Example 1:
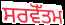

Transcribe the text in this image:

ਸਰਵੋੱਤਮ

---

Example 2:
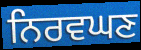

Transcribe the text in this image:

ਨਿਰਵਘਣ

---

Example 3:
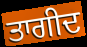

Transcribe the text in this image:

ਤਾਗੀਦ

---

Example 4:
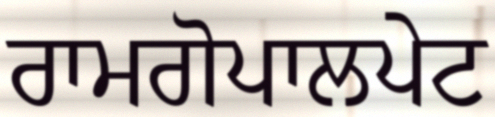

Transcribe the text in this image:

ਰਾਮਗੋਪਾਲਪੇਟ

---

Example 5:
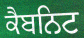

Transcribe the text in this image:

ਕੈਬਨਿਟ